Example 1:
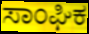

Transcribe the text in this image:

ಸಾಂಘಿಕ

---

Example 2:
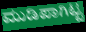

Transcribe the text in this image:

ಮುಡಿಪಾಗಿಟ್ಟ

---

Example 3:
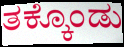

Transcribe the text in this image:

ತಕ್ಕೊಂಡು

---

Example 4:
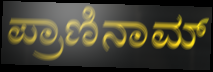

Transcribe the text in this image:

ಪ್ರಾಣಿನಾಮ್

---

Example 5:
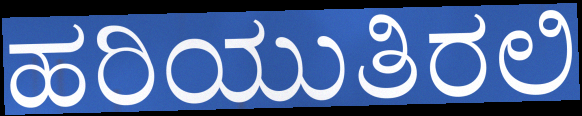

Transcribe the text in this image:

ಹರಿಯುತಿರಲಿ